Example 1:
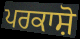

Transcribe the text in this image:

ਪਰਕਾਸ਼ੋ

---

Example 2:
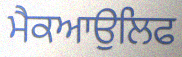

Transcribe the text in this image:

ਮੈਕਆਉਲਿਫ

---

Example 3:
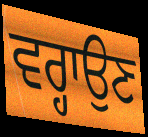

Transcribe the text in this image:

ਵਰ੍ਹਾਉਣ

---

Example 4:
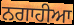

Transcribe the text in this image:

ਨਗਾਹੀਆ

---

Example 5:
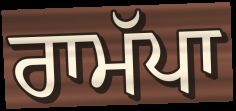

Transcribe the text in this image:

ਰਾਮੱਪਾ